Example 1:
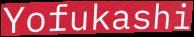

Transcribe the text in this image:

Yofukashi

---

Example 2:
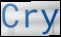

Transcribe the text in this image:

Cry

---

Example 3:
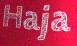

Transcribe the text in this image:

Haja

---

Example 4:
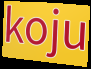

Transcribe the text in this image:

koju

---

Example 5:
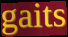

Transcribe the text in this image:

gaits